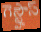
గెస్ట్హౌస్